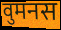
वुमनस